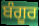
ਬੰਗੂਰ